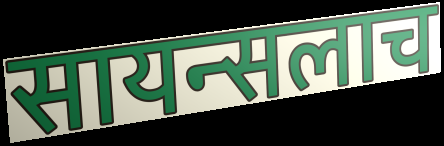
सायन्सलाच